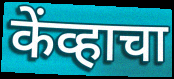
केंव्हाचा